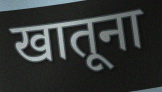
खातूना